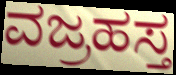
ವಜ್ರಹಸ್ತ